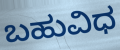
ಬಹುವಿಧ